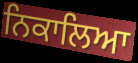
ਨਿਕਾਲਿਆ